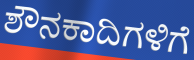
ಶೌನಕಾದಿಗಳಿಗೆ